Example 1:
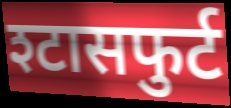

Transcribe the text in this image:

श्टासफुर्ट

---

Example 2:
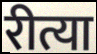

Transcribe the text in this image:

रीत्या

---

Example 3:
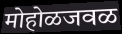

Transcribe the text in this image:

मोहोळजवळ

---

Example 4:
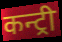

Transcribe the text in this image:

कन्ट्री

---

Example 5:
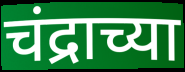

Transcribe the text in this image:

चंद्राच्या